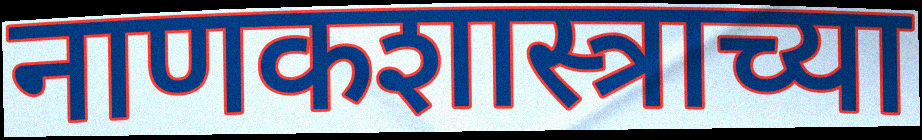
नाणकशास्त्राच्या